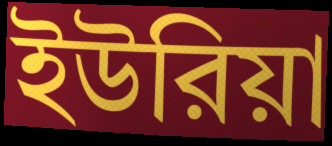
ইউরিয়া